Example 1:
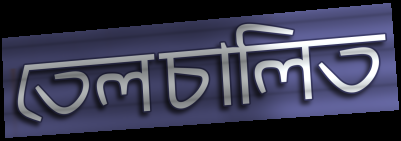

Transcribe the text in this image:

তেলচালিত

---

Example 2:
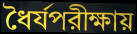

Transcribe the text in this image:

ধৈর্যপরীক্ষায়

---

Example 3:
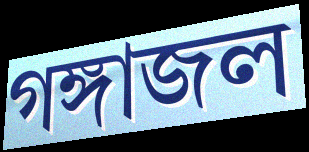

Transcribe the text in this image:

গঙ্গাজল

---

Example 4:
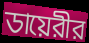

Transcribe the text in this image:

ডায়েরীর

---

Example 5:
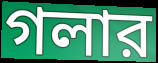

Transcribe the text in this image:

গলার